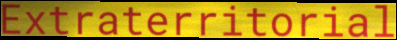
Extraterritorial